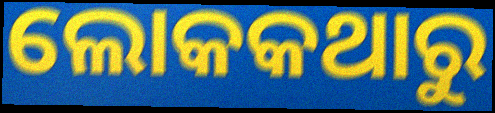
ଲୋକକଥାରୁ